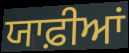
ਯਾਫ਼ੀਆਂ